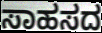
ಸಾಹಸದ